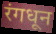
रंगधून